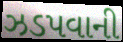
ઝડપવાની